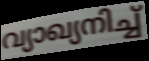
വ്യാഖ്യനിച്ച്